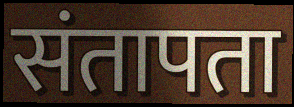
संतापता